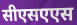
सीएसएएस